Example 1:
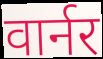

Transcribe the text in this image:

वार्नर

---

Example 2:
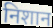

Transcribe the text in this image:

निशान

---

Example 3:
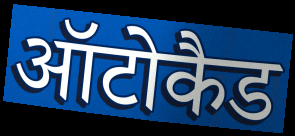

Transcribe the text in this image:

ऑटोकैड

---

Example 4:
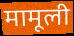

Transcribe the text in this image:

मामूली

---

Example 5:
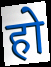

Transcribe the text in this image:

हो